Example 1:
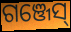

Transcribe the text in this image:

ଗଞ୍ଜେସ୍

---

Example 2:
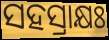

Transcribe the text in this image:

ସହସ୍ରାକ୍ଷଃ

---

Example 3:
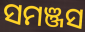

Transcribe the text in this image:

ସମଞ୍ଜସ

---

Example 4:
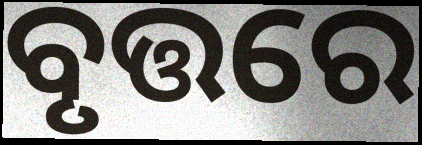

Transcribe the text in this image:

ବୃତ୍ତରେ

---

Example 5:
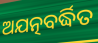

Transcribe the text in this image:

ଅଯତ୍ନବର୍ଦ୍ଧିତ